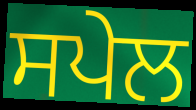
ਸਪੇਲ